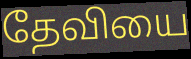
தேவியை